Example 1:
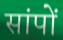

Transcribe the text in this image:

सांपों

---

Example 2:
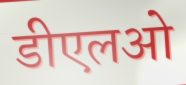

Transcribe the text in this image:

डीएलओ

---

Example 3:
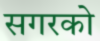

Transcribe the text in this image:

सगरको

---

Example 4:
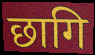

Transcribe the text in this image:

छागि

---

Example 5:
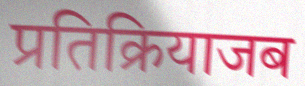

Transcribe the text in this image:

प्रतिक्रियाजब